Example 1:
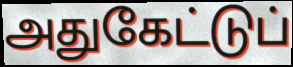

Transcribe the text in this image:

அதுகேட்டுப்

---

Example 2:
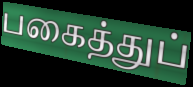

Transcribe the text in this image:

பகைத்துப்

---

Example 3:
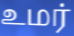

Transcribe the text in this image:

உமர்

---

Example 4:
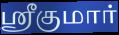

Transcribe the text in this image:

ஸ்ரீகுமார்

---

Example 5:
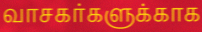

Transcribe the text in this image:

வாசகர்களுக்காக